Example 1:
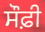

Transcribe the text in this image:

ਸੌਫ਼ੀ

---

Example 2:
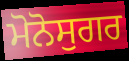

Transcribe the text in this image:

ਮੋਨੋਸੁਗਰ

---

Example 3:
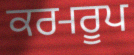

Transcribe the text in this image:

ਕਰ੍ਮਰੂਪ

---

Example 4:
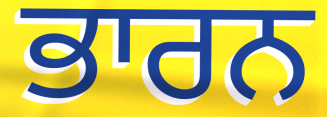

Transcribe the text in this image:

ਭਾਰਨ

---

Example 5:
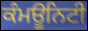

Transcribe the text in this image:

ਕੰਮਊਨਿਟੀ